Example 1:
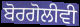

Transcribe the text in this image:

ਬੋਰਗੋਲੀਵੀ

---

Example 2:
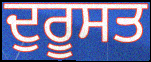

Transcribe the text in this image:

ਦੁਰੂਸਤ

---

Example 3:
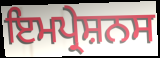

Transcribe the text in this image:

ਇਮਪ੍ਰੇਸ਼ਨਸ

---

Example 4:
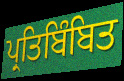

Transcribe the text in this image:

ਪ੍ਰਤਿਬਿੰਬਿਤ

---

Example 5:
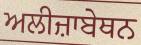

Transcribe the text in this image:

ਅਲੀਜ਼ਾਬੇਥਨ